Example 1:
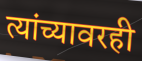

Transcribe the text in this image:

त्यांच्यावरही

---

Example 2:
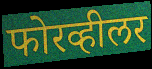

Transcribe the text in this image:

फोरव्हीलर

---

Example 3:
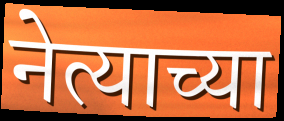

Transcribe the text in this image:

नेत्याच्या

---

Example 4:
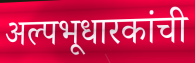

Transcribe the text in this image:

अल्पभूधारकांची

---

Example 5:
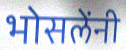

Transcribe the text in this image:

भोसलेंनी